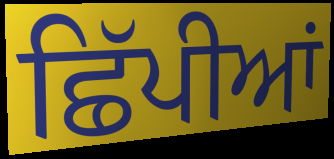
ਛਿੱਪੀਆਂ